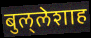
बुल्लेशाह